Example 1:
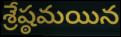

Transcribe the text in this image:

శ్రేష్ఠమయిన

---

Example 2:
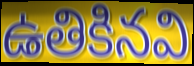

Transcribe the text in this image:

ఉతికినవి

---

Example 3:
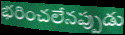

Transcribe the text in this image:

భరించలేనప్పుడు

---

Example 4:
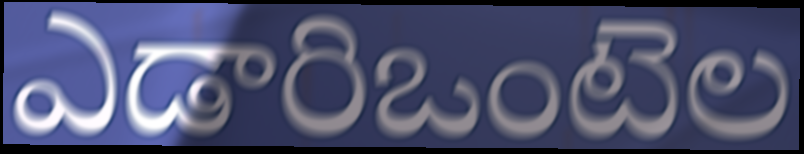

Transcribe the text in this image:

ఎడారిఒంటెల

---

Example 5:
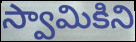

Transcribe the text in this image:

స్వామికిని